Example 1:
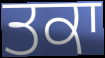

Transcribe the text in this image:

ਤਕਾ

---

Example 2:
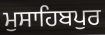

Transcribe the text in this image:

ਮੁਸਾਹਿਬਪੁਰ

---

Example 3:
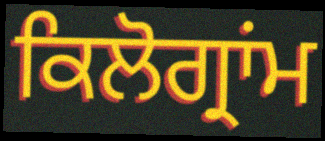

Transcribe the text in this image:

ਕਿਲੋਗ੍ਰਾਂਮ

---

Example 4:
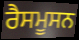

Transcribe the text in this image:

ਰੈਸਮੂਸਨ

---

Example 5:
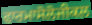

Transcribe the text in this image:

ਫਾਰਮਾਸੋਲੋਜੀਕਲ